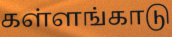
கள்ளங்காடு